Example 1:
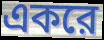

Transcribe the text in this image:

একরে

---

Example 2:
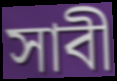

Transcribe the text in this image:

সাবী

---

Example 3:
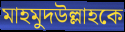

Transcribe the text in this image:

মাহমুদউল্লাহকে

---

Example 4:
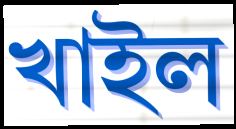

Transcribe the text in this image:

খাইল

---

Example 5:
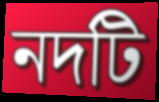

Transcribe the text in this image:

নদটি